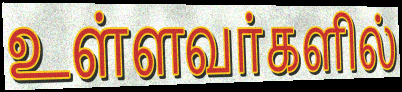
உள்ளவர்களில்